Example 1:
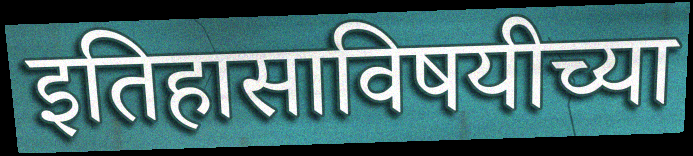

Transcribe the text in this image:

इतिहासाविषयीच्या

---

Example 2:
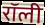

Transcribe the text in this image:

रॉली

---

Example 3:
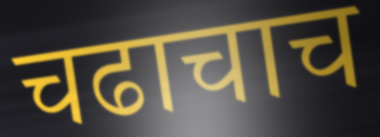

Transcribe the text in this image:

चढाचाच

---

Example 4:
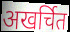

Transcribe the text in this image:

अखर्चित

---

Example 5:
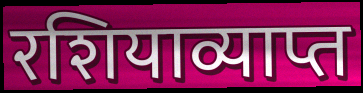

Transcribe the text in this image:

रशियाव्याप्त